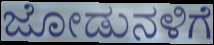
ಜೋಡುನಳಿಗೆ